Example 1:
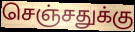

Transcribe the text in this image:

செஞ்சதுக்கு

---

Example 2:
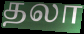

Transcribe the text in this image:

தலா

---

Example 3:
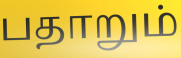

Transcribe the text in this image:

பதாறும்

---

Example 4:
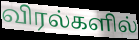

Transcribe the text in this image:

விரல்களில்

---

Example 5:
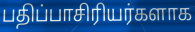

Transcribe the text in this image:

பதிப்பாசிரியர்களாக